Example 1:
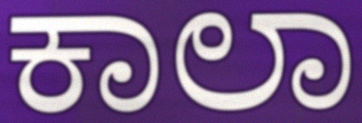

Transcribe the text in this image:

ಕಾಲಾ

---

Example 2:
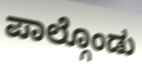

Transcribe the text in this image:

ಪಾಲ್ಗೊಂಡು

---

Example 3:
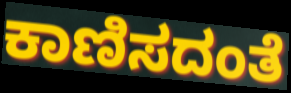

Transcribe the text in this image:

ಕಾಣಿಸದಂತೆ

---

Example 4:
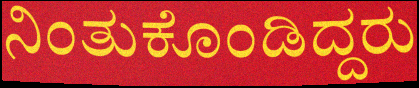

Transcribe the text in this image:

ನಿಂತುಕೊಂಡಿದ್ದರು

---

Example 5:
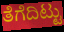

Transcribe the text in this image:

ತೆಗೆದಿಟ್ಟು